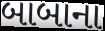
બાબાના